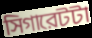
সিগারেটটা